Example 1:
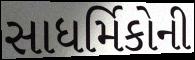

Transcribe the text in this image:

સાધર્મિકોની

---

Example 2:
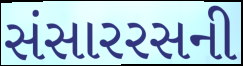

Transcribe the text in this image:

સંસારરસની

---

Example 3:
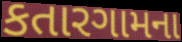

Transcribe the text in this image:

કતારગામના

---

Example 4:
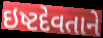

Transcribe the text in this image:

ઇષ્ટદેવતાને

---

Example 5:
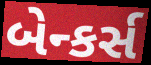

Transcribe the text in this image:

બેન્કર્સ